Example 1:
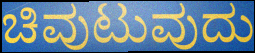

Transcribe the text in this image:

ಚಿವುಟುವುದು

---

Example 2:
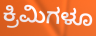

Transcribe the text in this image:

ಕ್ರಿಮಿಗಳೂ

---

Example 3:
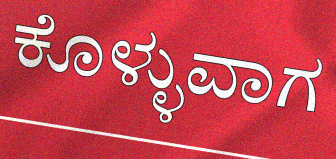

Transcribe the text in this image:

ಕೊಳ್ಳುವಾಗ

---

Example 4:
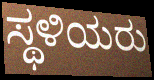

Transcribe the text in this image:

ಸ್ಥಳಿಯರು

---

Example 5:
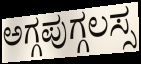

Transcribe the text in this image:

ಅಗ್ಗಪುಗ್ಗಲಸ್ಸ